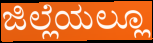
ಜಿಲ್ಲೆಯಲ್ಲೂ